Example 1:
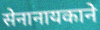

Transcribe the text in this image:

सेनानायकाने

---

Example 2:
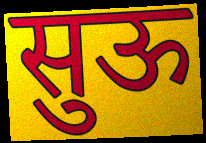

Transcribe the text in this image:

सुऊ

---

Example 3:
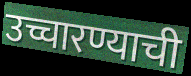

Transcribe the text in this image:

उच्चारण्याची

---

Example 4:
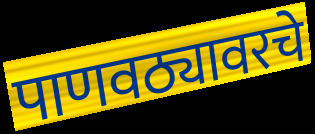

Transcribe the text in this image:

पाणवठ्यावरचे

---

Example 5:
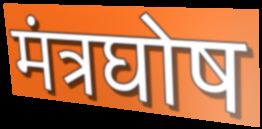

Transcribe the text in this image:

मंत्रघोष